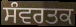
ਸੰਵਰਤਕ